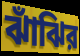
ঝাঁঝির